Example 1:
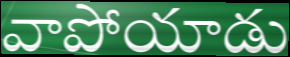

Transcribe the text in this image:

వాపోయాడు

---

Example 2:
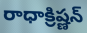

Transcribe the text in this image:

రాధాక్రిష్ణన్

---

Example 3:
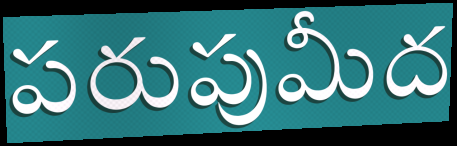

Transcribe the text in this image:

పరుపుమీద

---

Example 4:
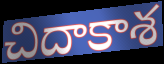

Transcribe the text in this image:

చిదాకాశ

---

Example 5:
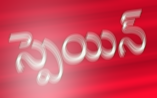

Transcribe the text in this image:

స్పెయిన్